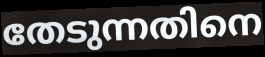
തേടുന്നതിനെ